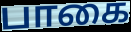
பாகை